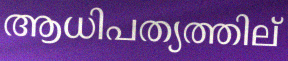
ആധിപത്യത്തില്